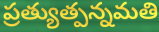
ప్రత్యుత్పన్నమతి